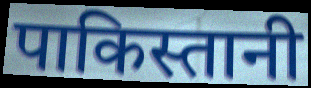
पाकिस्‍तानी